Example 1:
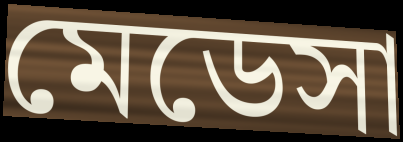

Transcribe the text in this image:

মেডেসা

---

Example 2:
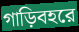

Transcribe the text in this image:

গাড়িবহরে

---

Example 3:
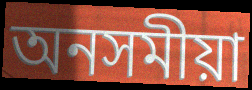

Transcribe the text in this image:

অনসমীয়া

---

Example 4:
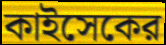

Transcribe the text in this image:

কাইসেকের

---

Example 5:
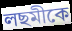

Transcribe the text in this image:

লছমীকে